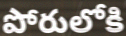
పోరులోకి